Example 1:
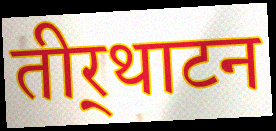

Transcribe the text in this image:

तीर्थाटन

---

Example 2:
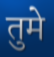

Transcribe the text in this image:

तुमे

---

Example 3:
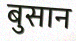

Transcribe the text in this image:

बुसान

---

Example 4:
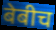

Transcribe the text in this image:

बेबीच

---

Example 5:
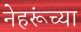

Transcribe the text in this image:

नेहरूंच्या